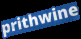
prithwine